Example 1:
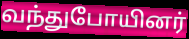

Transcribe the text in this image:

வந்துபோயினர்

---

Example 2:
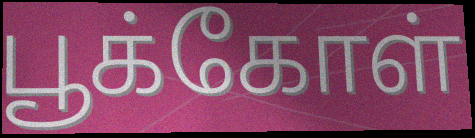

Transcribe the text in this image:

பூக்கோள்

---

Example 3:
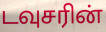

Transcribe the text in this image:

டவுசரின்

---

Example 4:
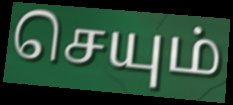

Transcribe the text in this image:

செயும்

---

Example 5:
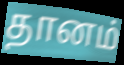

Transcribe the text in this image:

தானம்